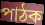
পাঠক